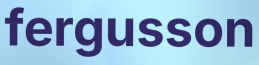
fergusson